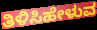
ತಿಳಿಸಿಹೇಳುವ